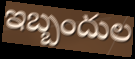
ఇబ్బందుల